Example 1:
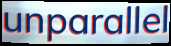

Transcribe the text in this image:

unparallel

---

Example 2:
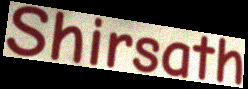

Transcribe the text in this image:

Shirsath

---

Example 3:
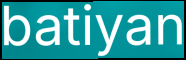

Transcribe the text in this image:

batiyan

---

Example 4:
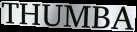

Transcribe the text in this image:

THUMBA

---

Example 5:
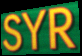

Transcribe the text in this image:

SYR